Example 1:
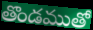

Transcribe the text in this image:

తొండముతో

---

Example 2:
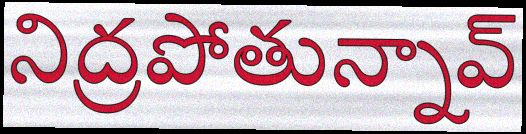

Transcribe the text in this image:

నిద్రపోతున్నావ్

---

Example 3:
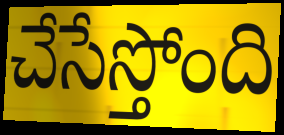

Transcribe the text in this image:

చేసేస్తోంది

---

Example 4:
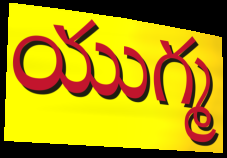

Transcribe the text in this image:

యుగ్మ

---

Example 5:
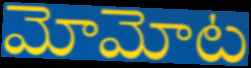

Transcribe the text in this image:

మోమోట